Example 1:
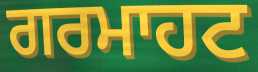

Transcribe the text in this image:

ਗਰਮਾਹਟ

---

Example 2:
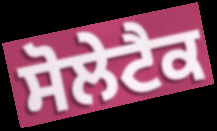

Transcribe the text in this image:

ਸੋਲੇਟੈਕ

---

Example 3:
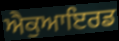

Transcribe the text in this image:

ਐਕੁਆਇਰਡ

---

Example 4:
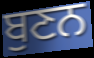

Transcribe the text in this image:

ਬੁਣਨ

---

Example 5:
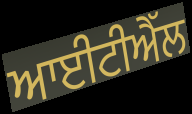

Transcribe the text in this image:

ਆਈਟੀਐੱਲ